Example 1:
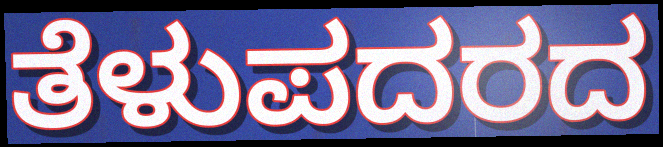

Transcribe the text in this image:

ತೆಳುಪದರದ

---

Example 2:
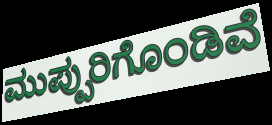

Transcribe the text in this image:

ಮುಪ್ಪುರಿಗೊಂಡಿವೆ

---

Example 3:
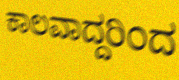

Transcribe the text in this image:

ಕಾಲವಾದ್ದರಿಂದ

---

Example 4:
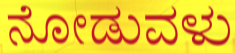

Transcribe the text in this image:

ನೋಡುವಳು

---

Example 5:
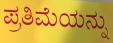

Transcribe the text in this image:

ಪ್ರತಿಮೆಯನ್ನು